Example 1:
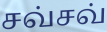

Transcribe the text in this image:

சவ்சவ்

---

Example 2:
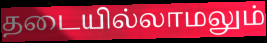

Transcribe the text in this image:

தடையில்லாமலும்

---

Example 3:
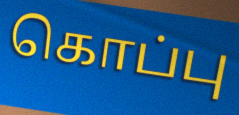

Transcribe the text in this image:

கொப்பு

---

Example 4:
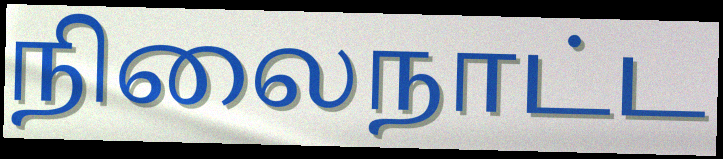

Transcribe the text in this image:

நிலைநாட்ட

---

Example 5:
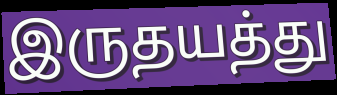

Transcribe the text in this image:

இருதயத்து